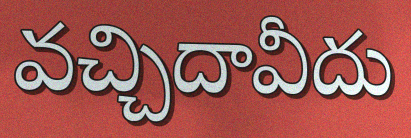
వచ్చిదావీదు